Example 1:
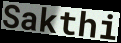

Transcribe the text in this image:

Sakthi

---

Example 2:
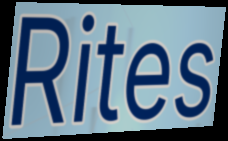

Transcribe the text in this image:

Rites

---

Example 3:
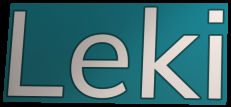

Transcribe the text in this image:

Leki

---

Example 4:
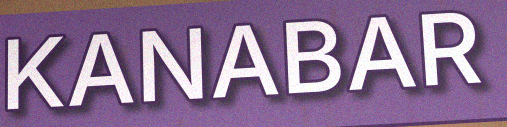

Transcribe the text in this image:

KANABAR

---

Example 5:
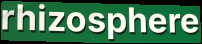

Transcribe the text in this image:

rhizosphere